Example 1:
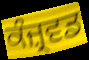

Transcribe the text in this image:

ਕੰਜ਼੍ਰਵਡ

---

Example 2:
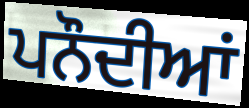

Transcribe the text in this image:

ਪਨੌਦੀਆਂ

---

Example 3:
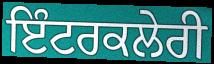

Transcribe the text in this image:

ਇੰਟਰਕਲੇਰੀ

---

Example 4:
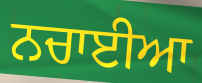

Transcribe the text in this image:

ਨਚਾਈਆ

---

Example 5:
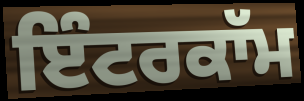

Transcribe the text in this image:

ਇੰਟਰਕਾੱਮ